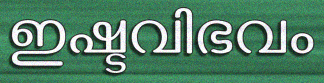
ഇഷ്ടവിഭവം